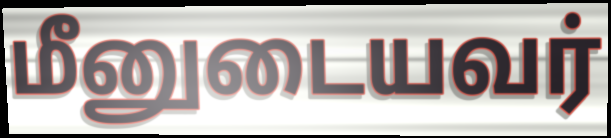
மீனுடையவர்